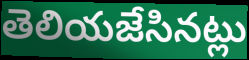
తెలియజేసినట్లు